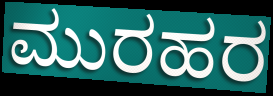
ಮುರಹರ